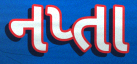
નપ્તા